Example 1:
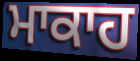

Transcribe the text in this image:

ਮਾਕਾਹ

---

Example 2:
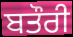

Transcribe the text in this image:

ਬਤੌਰੀ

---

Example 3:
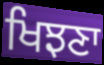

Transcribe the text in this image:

ਖਿਝਣਾ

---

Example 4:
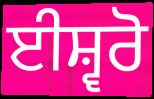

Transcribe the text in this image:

ਈਸ਼੍ਵਰੋ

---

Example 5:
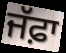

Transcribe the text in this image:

ਜੱਫ਼ਾ